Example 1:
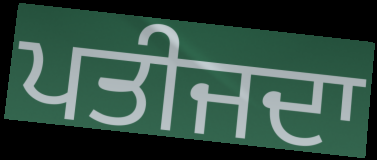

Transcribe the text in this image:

ਪਤੀਜਦਾ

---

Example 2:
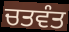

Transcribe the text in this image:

ਚਤਵੰਤ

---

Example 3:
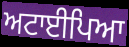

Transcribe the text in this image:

ਅਟਾਈਪਿਆ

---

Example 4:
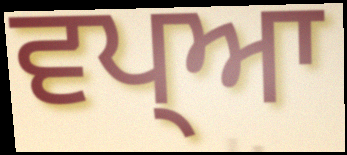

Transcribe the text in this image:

ਵਪ੍ਆ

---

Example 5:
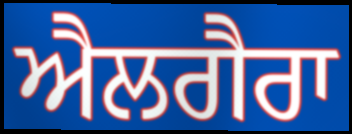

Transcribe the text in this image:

ਐਲਗੈਰਾ